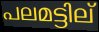
പലമട്ടില്